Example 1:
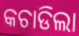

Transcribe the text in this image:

କଚାଡିଲା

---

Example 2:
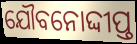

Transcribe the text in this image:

ଯୌବନୋଦ୍ଦୀପ୍ତ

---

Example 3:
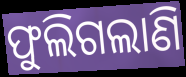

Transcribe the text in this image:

ଫୁଲିଗଲାଣି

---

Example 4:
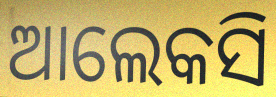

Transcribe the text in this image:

ଆଲେକସି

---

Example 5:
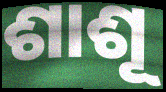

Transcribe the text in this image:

ଶାଶୂ